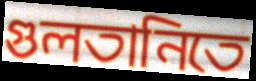
গুলতানিতে